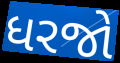
ધરજો